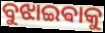
ବୁଝାଇଵାକୁ